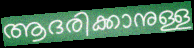
ആദരിക്കാനുള്ള